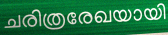
ചരിത്രരേഖയായി